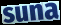
suna